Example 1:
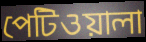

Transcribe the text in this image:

পেটিওয়ালা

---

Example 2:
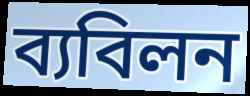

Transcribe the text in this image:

ব্যবিলন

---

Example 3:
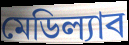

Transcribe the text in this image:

মেডিল্যাব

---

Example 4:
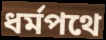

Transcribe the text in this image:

ধর্মপথে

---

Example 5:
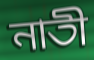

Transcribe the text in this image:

নাতী